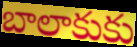
బాలాకుకు